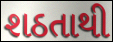
શઠતાથી